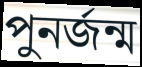
পুনর্জন্ম